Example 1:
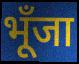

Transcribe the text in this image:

भूँजा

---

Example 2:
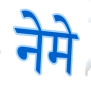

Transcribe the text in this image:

नेमे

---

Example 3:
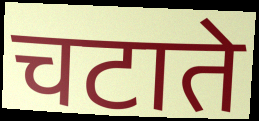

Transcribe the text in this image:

चटाते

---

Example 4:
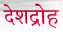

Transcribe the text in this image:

देशद्रोह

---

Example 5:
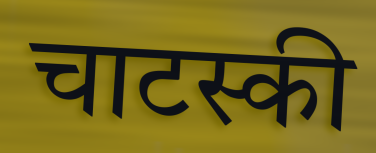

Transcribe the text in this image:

चाटस्की